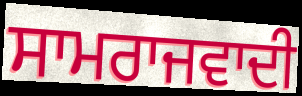
ਸਾਮਰਾਜਵਾਦੀ